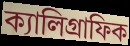
ক্যালিগ্রাফিক